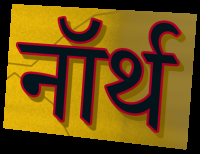
नॉर्थ